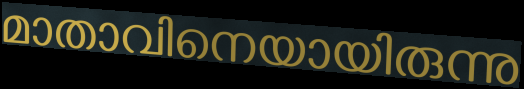
മാതാവിനെയായിരുന്നു